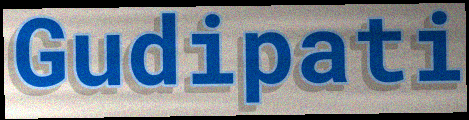
Gudipati